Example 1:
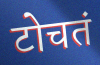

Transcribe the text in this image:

टोचतं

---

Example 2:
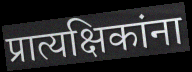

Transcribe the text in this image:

प्रात्यक्षिकांना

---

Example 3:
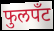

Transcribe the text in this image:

फुलपँट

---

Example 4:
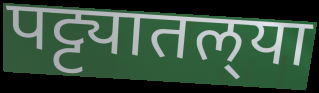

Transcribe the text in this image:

पट्ट्यातल्या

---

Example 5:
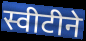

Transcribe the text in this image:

स्वीटीने